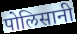
पोलिसानी